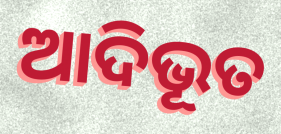
ଆଦିଭୂତ